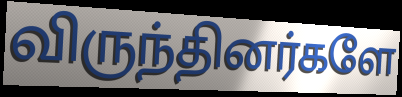
விருந்தினர்களே